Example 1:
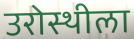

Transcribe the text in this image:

उरोस्थीला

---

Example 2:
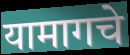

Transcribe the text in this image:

यामागचे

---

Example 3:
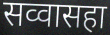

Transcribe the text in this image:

सव्वासहा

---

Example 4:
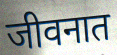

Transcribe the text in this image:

जीवनात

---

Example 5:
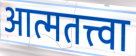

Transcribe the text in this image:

आत्मतत्त्वा